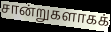
சான்றுகளாகக்